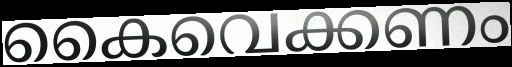
കൈവെക്കണം